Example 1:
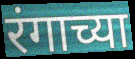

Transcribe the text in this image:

रंगाच्या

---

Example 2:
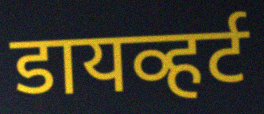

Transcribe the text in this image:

डायव्हर्ट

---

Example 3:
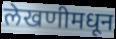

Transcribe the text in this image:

लेखणीमधून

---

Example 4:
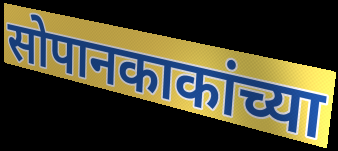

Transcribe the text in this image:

सोपानकाकांच्या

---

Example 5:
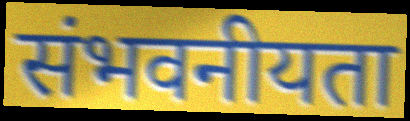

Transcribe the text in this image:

संभवनीयता